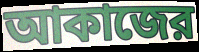
আকাজের